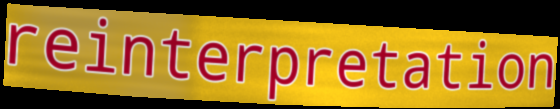
reinterpretation